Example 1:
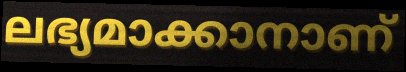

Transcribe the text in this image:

ലഭ്യമാക്കാനാണ്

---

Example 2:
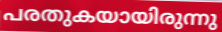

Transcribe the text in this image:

പരതുകയായിരുന്നു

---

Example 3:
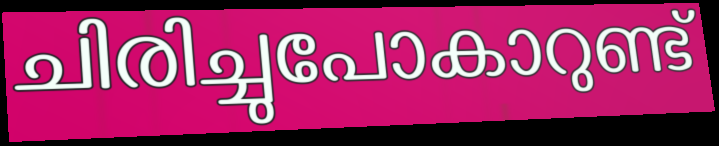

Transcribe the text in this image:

ചിരിച്ചുപോകാറുണ്ട്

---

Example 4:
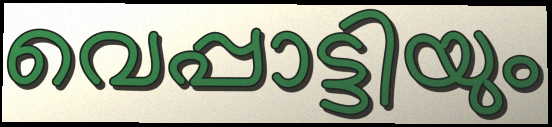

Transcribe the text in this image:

വെപ്പാട്ടിയും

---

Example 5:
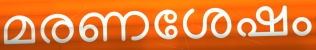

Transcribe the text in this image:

മരണശേഷം